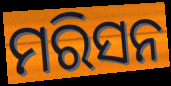
ମରିସନ